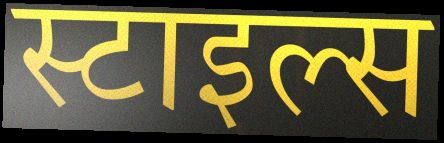
स्टाइल्स